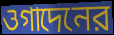
ওগাদেনের